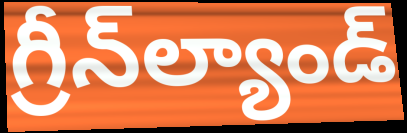
గ్రీన్‌ల్యాండ్